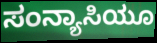
ಸಂನ್ಯಾಸಿಯೂ